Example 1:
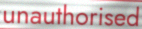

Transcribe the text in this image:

unauthorised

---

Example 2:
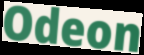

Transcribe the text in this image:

Odeon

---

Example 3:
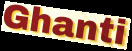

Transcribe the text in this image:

Ghanti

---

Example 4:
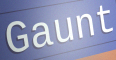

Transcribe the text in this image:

Gaunt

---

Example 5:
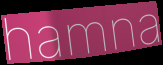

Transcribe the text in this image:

hamna